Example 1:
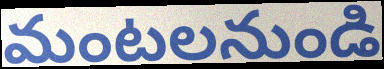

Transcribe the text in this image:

మంటలనుండి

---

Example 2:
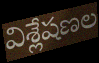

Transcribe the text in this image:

విశ్లేషణల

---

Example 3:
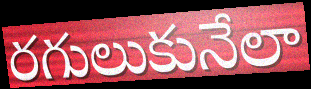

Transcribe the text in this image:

రగులుకునేలా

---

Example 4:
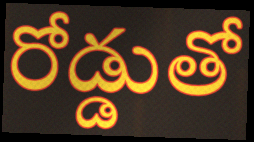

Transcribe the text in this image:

రోడ్డుతో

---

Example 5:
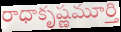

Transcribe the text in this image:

రాధాకృష్ణమూర్తి